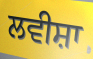
ਲਵੀਸ਼ਾ